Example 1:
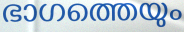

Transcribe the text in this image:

ഭാഗത്തെയും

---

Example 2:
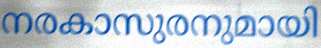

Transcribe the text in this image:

നരകാസുരനുമായി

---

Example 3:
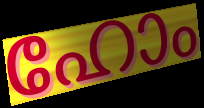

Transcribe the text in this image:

ഹോം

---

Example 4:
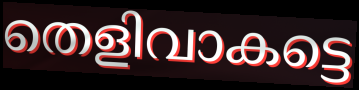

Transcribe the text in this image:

തെളിവാകട്ടെ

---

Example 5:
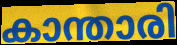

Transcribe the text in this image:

കാന്താരി